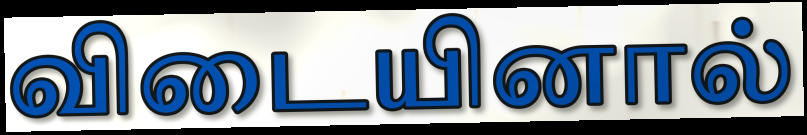
விடையினால்